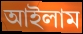
আইলাম